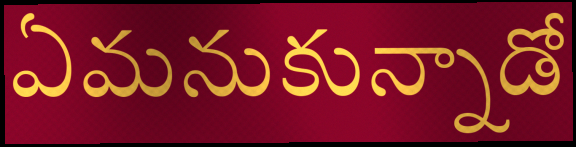
ఏమనుకున్నాడో